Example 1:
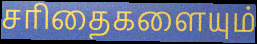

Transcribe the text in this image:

சரிதைகளையும்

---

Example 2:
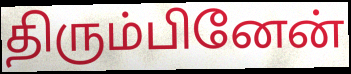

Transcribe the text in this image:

திரும்பினேன்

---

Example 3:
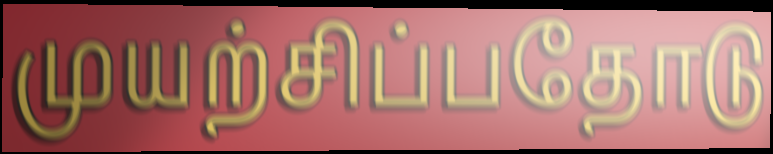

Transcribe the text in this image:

முயற்சிப்பதோடு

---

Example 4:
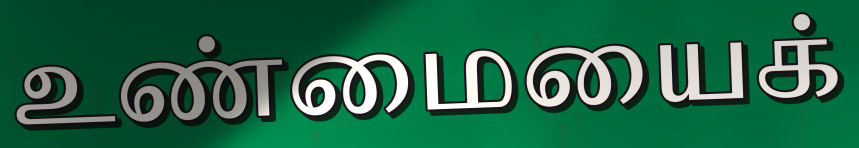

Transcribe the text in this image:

உண்மையைக்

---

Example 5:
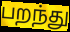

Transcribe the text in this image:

பறந்து